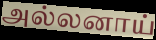
அல்லனாய்